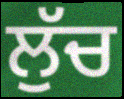
ਲੁੱਚ